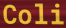
Coli